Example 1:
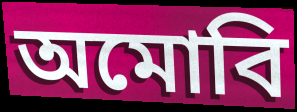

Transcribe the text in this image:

অমোবি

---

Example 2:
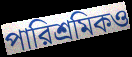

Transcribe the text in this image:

পারিশ্রমিকও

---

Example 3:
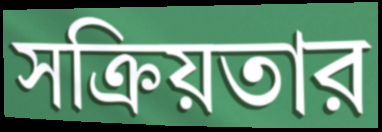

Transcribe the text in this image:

সক্রিয়তার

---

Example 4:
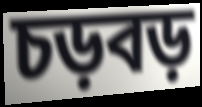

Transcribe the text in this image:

চড়বড়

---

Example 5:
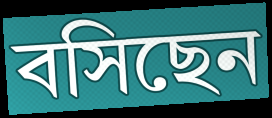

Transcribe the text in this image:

বসিছেন